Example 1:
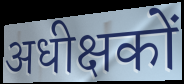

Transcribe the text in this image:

अधीक्षकों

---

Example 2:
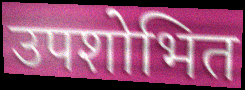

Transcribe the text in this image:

उपशोभित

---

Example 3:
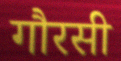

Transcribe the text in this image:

गौरसी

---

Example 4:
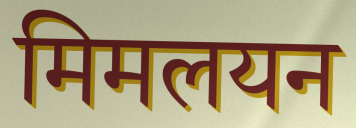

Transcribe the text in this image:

मिमलयन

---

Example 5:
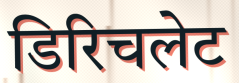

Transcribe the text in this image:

डिरिचलेट